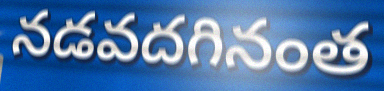
నడవదగినంత